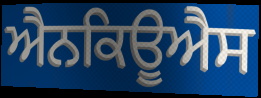
ਐਨਕਿਊਐਸ